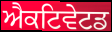
ਐਕਟਿਵੇਟਡ